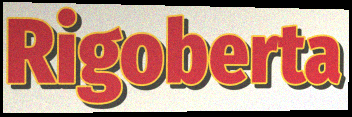
Rigoberta